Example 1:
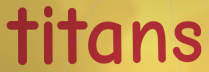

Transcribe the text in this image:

titans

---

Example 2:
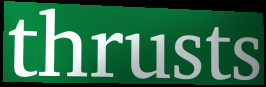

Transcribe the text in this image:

thrusts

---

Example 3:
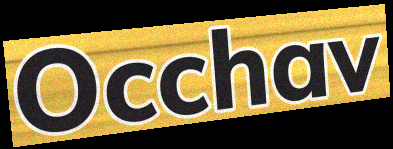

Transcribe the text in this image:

Occhav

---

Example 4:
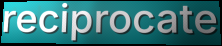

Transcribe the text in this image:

reciprocate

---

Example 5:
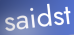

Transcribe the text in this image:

saidst